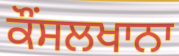
ਕੌਂਸਲਖਾਨਾ